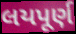
લયપૂર્ણ